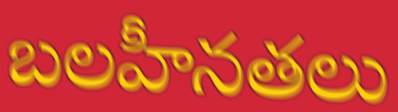
బలహీనతలు